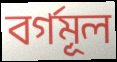
বৰ্গমূল